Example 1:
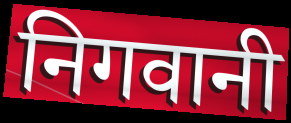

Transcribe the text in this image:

निगवानी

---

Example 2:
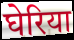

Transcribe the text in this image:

घेरिया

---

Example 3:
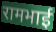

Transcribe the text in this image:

रामभाई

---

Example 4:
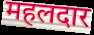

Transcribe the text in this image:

महलदार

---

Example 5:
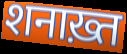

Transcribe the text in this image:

शनाख़्त